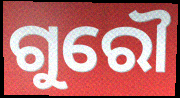
ଗୁରୌ